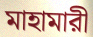
মাহামারী